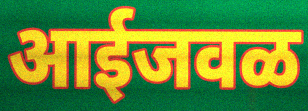
आईजवळ